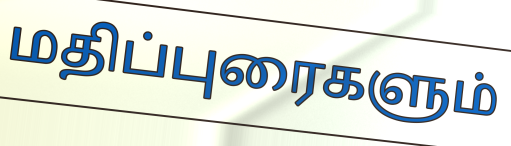
மதிப்புரைகளும்